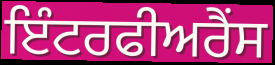
ਇੰਟਰਫੀਅਰੈਂਸ